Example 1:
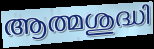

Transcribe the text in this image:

ആത്മശുദ്ധി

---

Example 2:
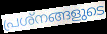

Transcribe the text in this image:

പ്രശ്നങ്ങളുടെ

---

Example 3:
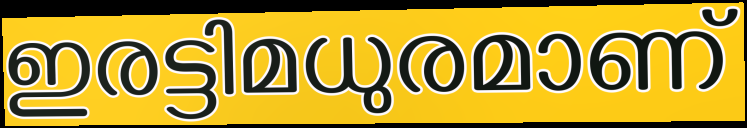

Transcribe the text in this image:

ഇരട്ടിമധുരമാണ്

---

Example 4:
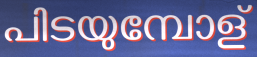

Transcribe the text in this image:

പിടയുമ്പോള്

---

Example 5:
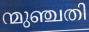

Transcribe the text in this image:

ന്മുഞ്ചതി